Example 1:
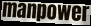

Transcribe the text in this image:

manpower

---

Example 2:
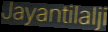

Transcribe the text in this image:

Jayantilalji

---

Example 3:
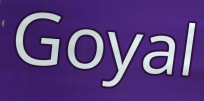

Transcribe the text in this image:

Goyal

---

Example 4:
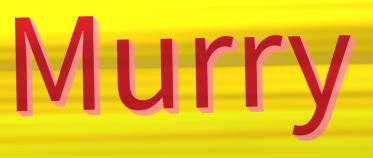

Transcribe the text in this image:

Murry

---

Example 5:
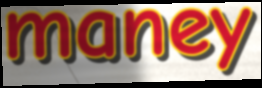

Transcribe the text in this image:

maney